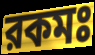
রকমঃ